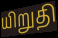
யிறுதி